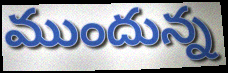
ముందున్న